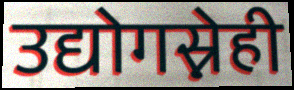
उद्योगस्नेही